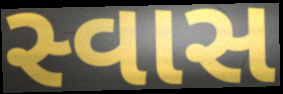
સ્વાસ